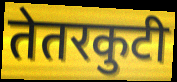
तेतरकुटी